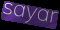
sayar